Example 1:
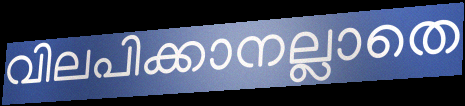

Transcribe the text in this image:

വിലപിക്കാനല്ലാതെ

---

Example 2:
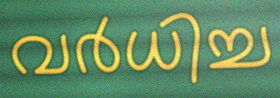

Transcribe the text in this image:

വർധിച്ച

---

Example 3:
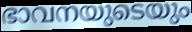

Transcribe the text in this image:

ഭാവനയുടെയും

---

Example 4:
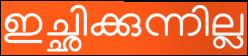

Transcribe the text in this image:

ഇച്ഛിക്കുന്നില്ല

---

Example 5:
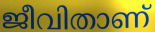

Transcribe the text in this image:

ജീവിതാണ്